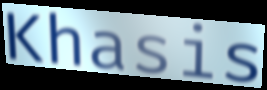
Khasis